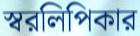
স্বরলিপিকার